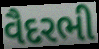
વૈદરભી